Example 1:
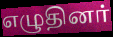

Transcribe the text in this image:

எழுதினர்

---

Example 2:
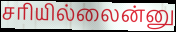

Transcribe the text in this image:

சரியில்லைன்னு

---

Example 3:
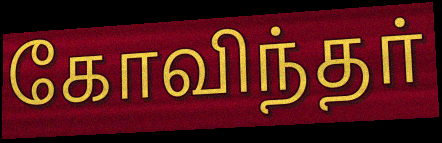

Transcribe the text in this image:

கோவிந்தர்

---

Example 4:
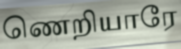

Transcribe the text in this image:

ணெறியாரே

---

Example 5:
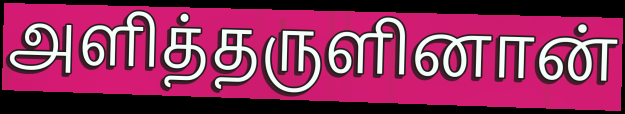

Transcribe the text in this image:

அளித்தருளினான்